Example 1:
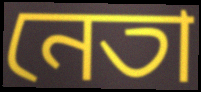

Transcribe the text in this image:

নেতা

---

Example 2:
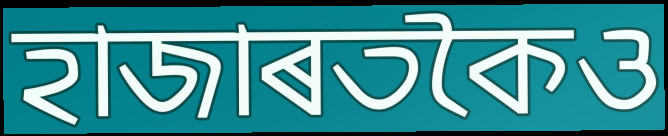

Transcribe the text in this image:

হাজাৰতকৈও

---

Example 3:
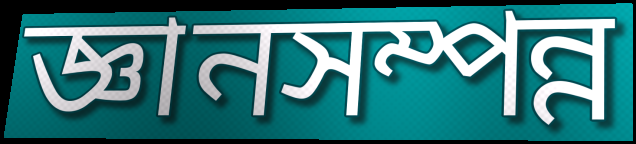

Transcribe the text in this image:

জ্ঞানসম্পন্ন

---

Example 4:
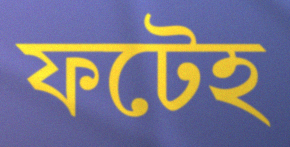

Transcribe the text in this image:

ফটেহ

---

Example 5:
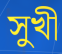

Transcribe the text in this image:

সুখী